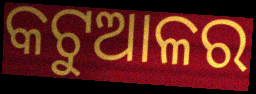
କଟୁଆଳର